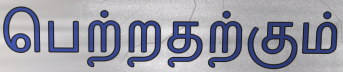
பெற்றதற்கும்